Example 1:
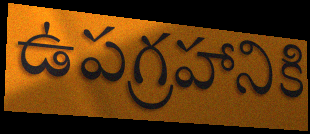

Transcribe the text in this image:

ఉపగ్రహానికి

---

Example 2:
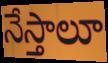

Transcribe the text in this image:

నేస్తాలూ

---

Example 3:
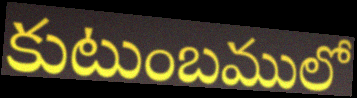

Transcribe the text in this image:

కుటుంబములో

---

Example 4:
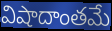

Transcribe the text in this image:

విషాదాంతమే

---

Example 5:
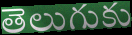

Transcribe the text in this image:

తెలుగుకు